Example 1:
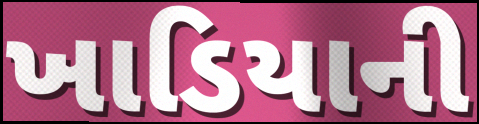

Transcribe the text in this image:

ખાડિયાની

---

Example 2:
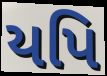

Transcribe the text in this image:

યપિ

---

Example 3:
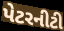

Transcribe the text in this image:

પેટરનીટી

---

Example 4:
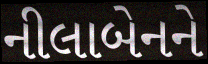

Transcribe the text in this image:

નીલાબેનને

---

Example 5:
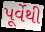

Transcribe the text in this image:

પૂર્વેથી